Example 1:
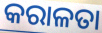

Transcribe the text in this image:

କରାଳତା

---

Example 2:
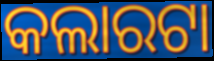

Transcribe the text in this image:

କଲାରଟା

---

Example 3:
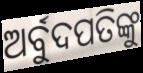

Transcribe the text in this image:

ଅର୍ବୁଦପତିଙ୍କୁ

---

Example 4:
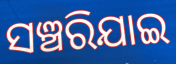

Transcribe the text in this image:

ସଞ୍ଚରିଯାଇ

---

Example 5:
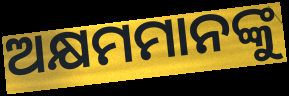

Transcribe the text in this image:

ଅକ୍ଷମମାନଙ୍କୁ